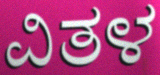
ವಿತಳ